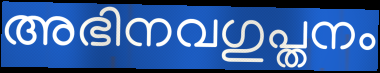
അഭിനവഗുപ്തനം